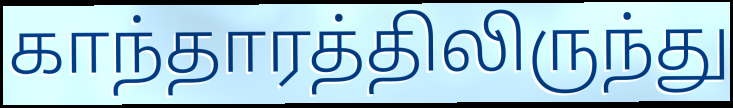
காந்தாரத்திலிருந்து